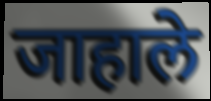
जाहाले